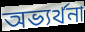
অভ্যর্থনা